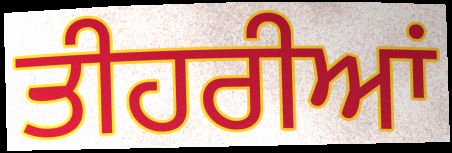
ਤੀਹਰੀਆਂ